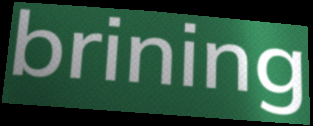
brining